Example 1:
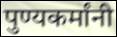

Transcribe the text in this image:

पुण्यकर्मांनी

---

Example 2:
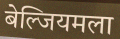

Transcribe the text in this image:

बेल्जियमला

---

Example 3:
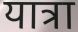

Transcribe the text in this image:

यात्रा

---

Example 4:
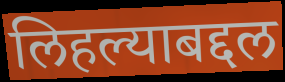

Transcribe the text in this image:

लिहल्याबद्दल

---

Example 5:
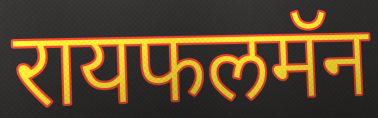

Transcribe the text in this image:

रायफलमॅन